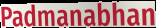
Padmanabhan